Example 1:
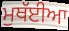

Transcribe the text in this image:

ਮੁਥੱਈਆ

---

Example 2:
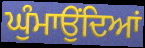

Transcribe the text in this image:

ਘੁੰਮਾਉਂਦਿਆਂ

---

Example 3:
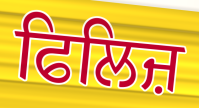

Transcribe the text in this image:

ਫਿਲਿਜ਼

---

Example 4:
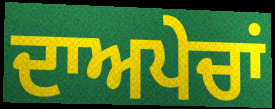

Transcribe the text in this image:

ਦਾਅਪੇਚਾਂ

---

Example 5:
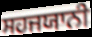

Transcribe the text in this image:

ਸਹਜਯਾਨੀ